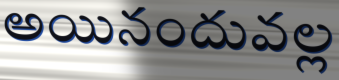
అయినందువల్ల